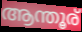
ആന്തൂര്